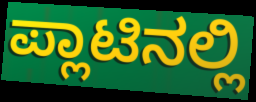
ಪ್ಲಾಟಿನಲ್ಲಿ